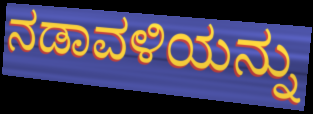
ನಡಾವಳಿಯನ್ನು